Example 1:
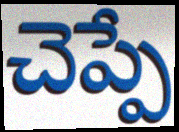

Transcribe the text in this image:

చెప్పే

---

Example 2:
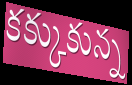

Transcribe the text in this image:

కక్కుకున్న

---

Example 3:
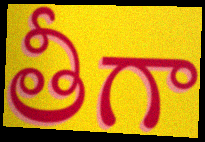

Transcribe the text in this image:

తీగా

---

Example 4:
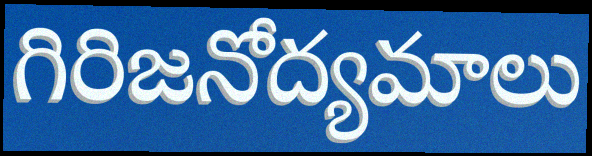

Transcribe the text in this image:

గిరిజనోద్యమాలు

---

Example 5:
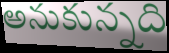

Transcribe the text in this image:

అనుకున్నది